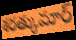
శరత్కుమార్